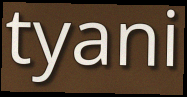
tyani